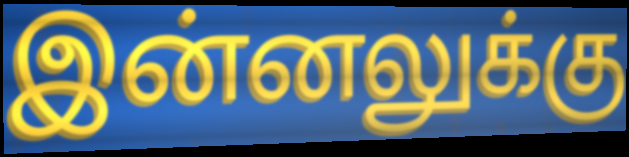
இன்னலுக்கு